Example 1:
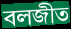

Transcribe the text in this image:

বলজীত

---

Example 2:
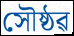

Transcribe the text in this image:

সৌষ্ঠৱ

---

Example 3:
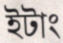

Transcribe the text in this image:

ইটাং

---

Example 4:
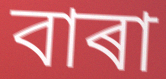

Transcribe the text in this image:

বাৰা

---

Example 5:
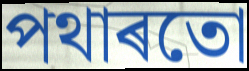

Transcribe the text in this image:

পথাৰতো